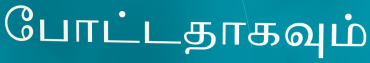
போட்டதாகவும்